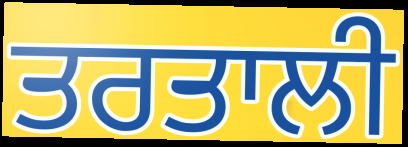
ਤਰਤਾਲੀ